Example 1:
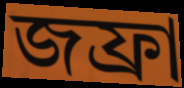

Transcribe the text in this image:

জফ্রা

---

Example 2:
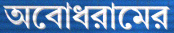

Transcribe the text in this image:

অবোধরামের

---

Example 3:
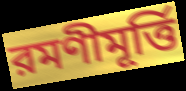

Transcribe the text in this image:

রমণীমূর্ত্তি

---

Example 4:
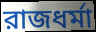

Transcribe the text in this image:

রাজধর্মা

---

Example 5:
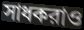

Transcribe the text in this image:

সাধকরাও